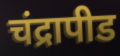
चंद्रापीड